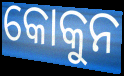
କୋକୁନ